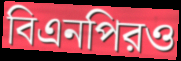
বিএনপিরও